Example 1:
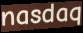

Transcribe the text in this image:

nasdaq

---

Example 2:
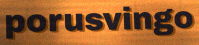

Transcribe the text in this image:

porusvingo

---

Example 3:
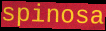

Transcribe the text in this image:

spinosa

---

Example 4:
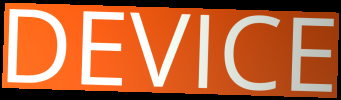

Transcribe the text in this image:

DEVICE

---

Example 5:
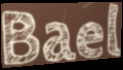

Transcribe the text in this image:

Bael